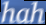
hah